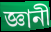
জ্ঞানী